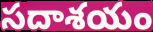
సదాశయం